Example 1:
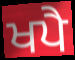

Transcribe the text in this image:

ਖਪੈ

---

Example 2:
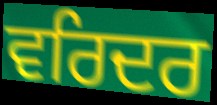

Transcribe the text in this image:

ਵਰਿਦਰ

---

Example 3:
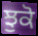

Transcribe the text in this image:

ਝੁਕੋ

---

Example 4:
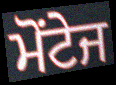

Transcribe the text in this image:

ਮੋਂਟੇਜ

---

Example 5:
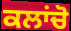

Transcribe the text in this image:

ਕਲਾਂਚੋ